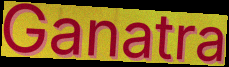
Ganatra